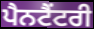
ਪੈਨਟੈਂਟਰੀ